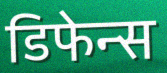
डिफेन्स